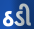
ઠડી